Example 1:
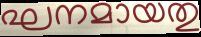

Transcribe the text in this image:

ഘനമായതു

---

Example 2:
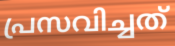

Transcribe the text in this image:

പ്രസവിച്ചത്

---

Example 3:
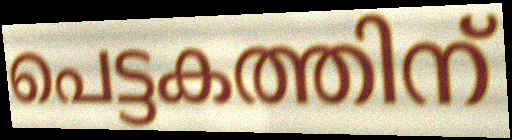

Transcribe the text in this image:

പെട്ടകത്തിന്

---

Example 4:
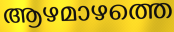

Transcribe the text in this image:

ആഴമാഴത്തെ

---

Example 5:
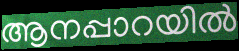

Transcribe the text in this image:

ആനപ്പാറയിൽ